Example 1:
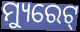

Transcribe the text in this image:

ମ୍ୟୁରେଟ୍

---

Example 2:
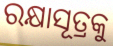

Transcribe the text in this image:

ରକ୍ଷାସୂତ୍ରକୁ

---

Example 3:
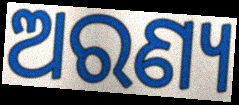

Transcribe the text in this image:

ଅରଣ୍ୟ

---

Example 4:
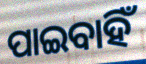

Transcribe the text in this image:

ପାଇବାହିଁ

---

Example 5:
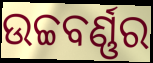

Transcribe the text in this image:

ଉଚ୍ଚବର୍ଣ୍ଣର